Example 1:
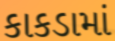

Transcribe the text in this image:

કાકડામાં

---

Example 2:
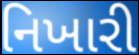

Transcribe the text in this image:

નિખારી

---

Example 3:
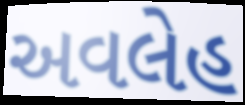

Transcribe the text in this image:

અવલેહ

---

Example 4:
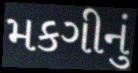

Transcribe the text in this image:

મકગીનું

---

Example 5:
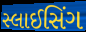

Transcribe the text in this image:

સ્લાઈસિંગ